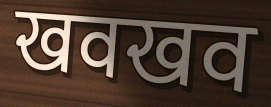
खवखव